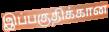
இப்பகுதிக்கான